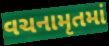
વચનામૃતમાં